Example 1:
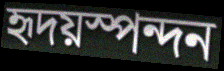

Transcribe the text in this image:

হৃদয়স্পন্দন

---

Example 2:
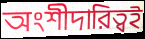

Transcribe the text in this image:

অংশীদারিত্বই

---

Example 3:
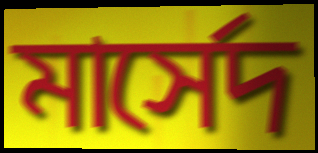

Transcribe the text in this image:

মার্সেদ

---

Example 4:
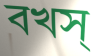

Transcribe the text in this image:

বখস্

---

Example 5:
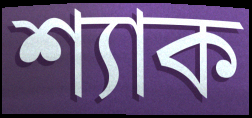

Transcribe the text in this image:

শ্যাক